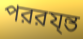
পররয্ন্ত